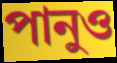
পানুও